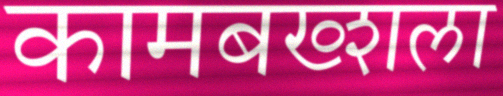
कामबख्शला